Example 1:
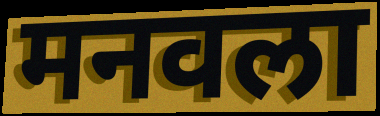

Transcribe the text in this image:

मनवला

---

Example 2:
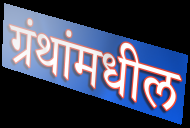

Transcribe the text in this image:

ग्रंथांमधील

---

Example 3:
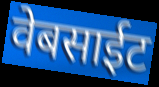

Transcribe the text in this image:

वेबसाईट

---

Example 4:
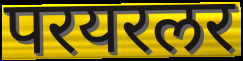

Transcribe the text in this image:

परयरलर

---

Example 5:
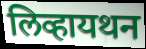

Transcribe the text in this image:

लिव्हायथन